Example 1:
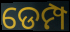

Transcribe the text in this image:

ଡେମ୍ପ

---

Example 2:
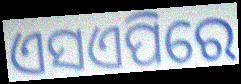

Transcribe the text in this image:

ଏସଏପିରେ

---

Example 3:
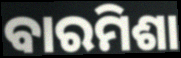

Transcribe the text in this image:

ବାରମିଶା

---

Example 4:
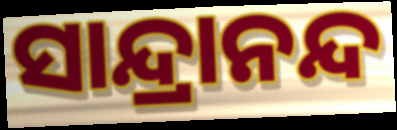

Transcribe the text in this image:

ସାନ୍ଦ୍ରାନନ୍ଦ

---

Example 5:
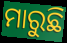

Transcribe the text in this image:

ମାରୁଛି